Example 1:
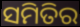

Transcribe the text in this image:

ସମିତିର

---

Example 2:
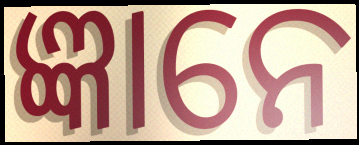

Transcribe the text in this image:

ଜ୍ଞାନେ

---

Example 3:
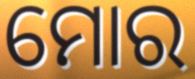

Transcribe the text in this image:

ମୋର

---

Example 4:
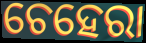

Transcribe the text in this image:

ଚେହେରା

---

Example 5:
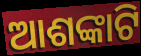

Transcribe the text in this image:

ଆଶଙ୍କାଟି